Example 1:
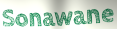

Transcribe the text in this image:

Sonawane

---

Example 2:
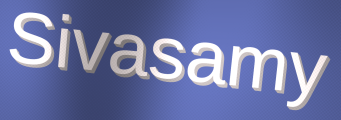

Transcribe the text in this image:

Sivasamy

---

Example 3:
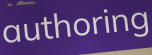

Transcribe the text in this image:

authoring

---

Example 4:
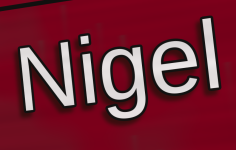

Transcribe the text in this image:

Nigel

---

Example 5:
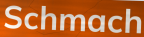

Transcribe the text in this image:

Schmach